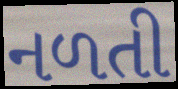
નળતી